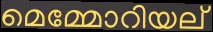
മെമ്മോറിയല്